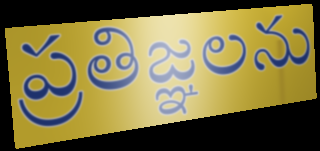
ప్రతిజ్ఞలను